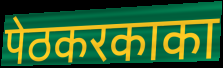
पेठकरकाका